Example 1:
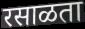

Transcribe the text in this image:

रसाळता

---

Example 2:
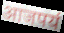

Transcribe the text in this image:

आजपयं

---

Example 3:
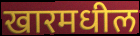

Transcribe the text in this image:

खारमधील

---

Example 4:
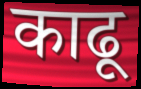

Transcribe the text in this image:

काढू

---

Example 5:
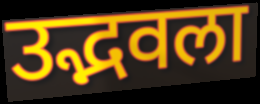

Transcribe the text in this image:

उद्भवला